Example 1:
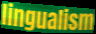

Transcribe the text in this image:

lingualism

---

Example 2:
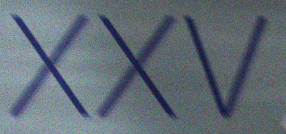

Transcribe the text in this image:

XXV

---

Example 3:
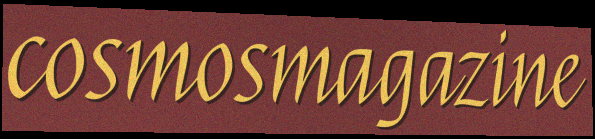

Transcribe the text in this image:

cosmosmagazine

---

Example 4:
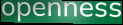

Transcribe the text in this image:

openness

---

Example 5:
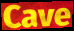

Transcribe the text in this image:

Cave